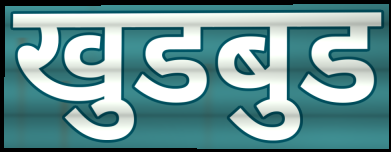
खुडबुड